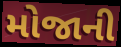
મોજાની